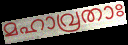
മഹാവ്രതാഃ